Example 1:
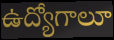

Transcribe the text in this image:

ఉద్యోగాలూ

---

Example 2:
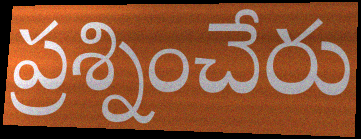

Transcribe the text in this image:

ప్రశ్నించేరు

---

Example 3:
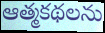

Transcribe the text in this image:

ఆత్మకథలను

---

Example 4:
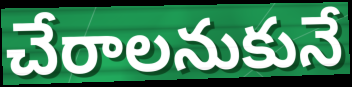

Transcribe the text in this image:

చేరాలనుకునే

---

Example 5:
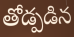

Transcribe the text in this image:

తోడ్పడిన